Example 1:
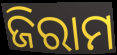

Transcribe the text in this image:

ଜିରାମ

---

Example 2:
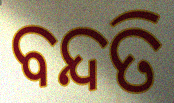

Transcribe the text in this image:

ବନ୍ଦତି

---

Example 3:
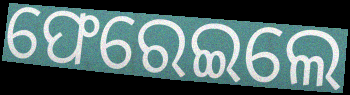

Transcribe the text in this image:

ଫେରେଇଲେ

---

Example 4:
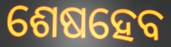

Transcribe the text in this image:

ଶେଷହେବ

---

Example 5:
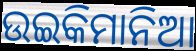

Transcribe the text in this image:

ଉଇକିମାନିଆ